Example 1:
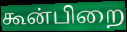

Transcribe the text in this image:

கூன்பிறை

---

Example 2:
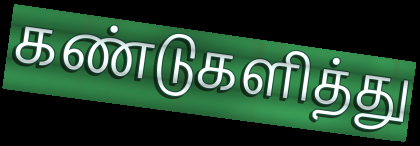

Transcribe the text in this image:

கண்டுகளித்து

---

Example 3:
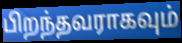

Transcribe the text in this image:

பிறந்தவராகவும்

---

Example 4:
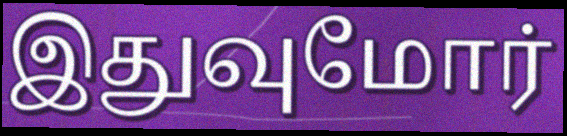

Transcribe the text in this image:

இதுவுமோர்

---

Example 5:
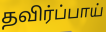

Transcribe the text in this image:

தவிர்ப்பாய்